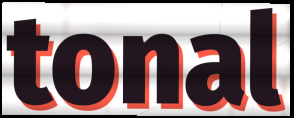
tonal